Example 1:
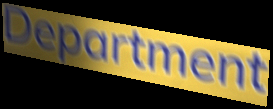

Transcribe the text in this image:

Department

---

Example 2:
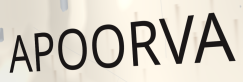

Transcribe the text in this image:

APOORVA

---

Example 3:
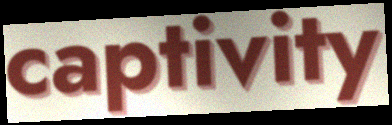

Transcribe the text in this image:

captivity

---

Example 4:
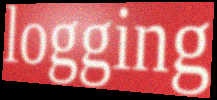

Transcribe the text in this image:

logging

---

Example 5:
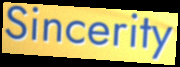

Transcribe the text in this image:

Sincerity